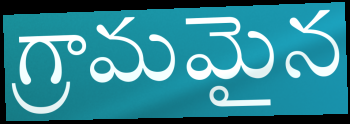
గ్రామమైన